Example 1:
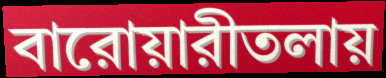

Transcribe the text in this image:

বারোয়ারীতলায়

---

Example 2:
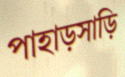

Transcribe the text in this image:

পাহাড়সাড়ি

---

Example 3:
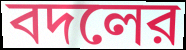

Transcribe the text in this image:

বদলের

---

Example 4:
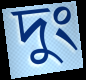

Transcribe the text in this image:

দুং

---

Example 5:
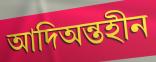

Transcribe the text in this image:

আদিঅন্তহীন